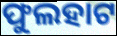
ଫୁଲହାଟ